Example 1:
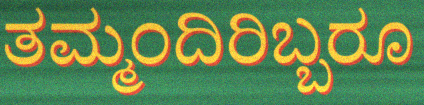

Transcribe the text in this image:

ತಮ್ಮಂದಿರಿಬ್ಬರೂ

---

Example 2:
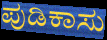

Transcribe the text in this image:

ಪುಡಿಕಾಸು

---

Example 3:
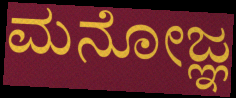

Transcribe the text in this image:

ಮನೋಜ್ಞ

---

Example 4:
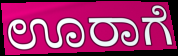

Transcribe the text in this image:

ಊರಾಗೆ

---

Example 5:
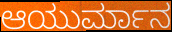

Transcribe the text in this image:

ಆಯುರ್ಮಾನ